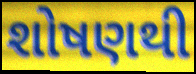
શોષણથી